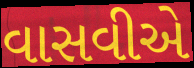
વાસવીએ